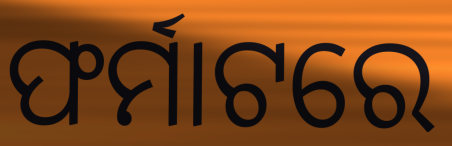
ଫର୍ମାଟରେ